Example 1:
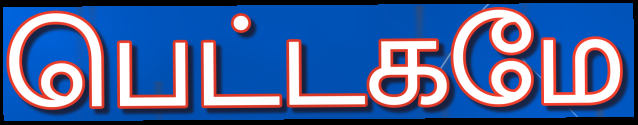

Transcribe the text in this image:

பெட்டகமே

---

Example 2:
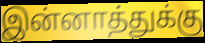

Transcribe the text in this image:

இன்னாத்துக்கு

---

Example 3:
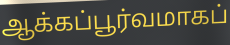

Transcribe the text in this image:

ஆக்கப்பூர்வமாகப்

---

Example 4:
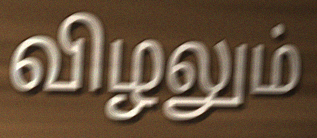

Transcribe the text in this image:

விழலும்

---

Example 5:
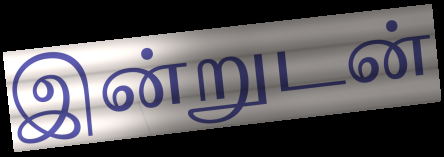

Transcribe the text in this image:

இன்றுடன்